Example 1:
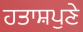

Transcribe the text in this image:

ਹਤਾਸ਼ਪੁਣੇ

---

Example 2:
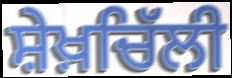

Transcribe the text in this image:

ਸ਼ੇਖ਼ਚਿੱਲੀ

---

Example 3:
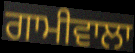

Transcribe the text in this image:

ਗਾਮੀਵਾਲਾ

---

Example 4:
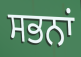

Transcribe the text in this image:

ਸਭਨਾਂ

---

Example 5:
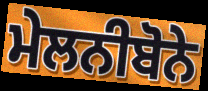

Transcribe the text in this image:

ਮੇਲਨੀਬੋਨੇ